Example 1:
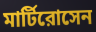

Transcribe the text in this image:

মার্টিরোসেন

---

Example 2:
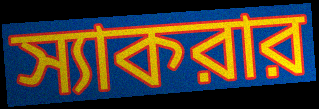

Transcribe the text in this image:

স্যাকরার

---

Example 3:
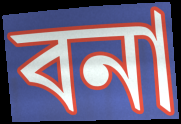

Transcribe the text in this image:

বনা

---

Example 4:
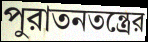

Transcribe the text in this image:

পুরাতনতন্ত্রের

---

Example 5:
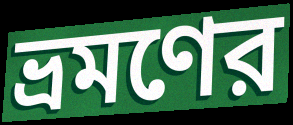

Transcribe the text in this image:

ভ্রমণের